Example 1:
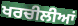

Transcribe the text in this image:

ਖਰਚੀਲੀਆਂ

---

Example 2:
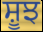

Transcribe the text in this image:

ਸ਼ੂਝ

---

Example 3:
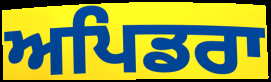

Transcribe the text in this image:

ਅਪਿਡਰਾ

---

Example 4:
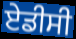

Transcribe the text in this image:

ਏਡੀਸੀ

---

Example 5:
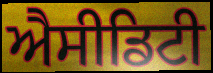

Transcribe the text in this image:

ਐਸੀਡਿਟੀ